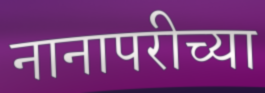
नानापरीच्या